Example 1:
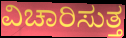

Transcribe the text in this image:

ವಿಚಾರಿಸುತ್ತ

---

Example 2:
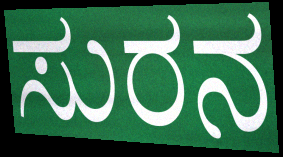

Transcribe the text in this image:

ಸುರನ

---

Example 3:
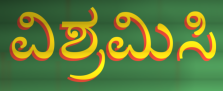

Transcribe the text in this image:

ವಿಶ್ರಮಿಸಿ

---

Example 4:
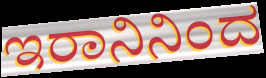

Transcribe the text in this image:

ಇರಾನಿನಿಂದ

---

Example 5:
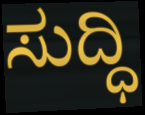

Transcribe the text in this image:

ಸುದ್ಧಿ